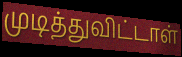
முடித்துவிட்டாள்